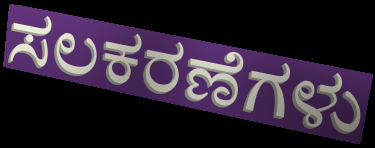
ಸಲಕರಣೆಗಳು